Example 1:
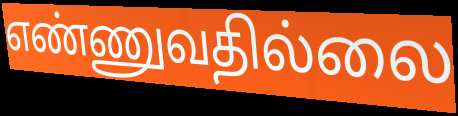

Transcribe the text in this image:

எண்ணுவதில்லை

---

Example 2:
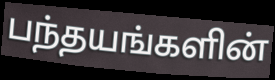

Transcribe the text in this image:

பந்தயங்களின்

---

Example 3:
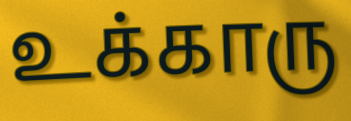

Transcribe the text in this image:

உக்காரு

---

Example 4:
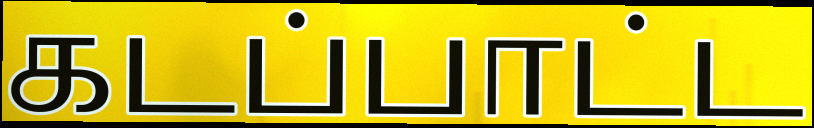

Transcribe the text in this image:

கடப்பாட்ட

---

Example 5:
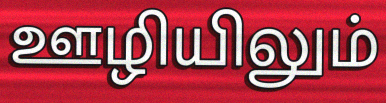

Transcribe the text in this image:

ஊழியிலும்